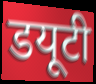
डयूटी